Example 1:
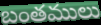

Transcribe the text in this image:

బంతములు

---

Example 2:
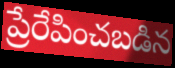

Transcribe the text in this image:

ప్రేరేపించబడిన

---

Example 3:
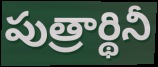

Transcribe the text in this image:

పుత్రార్థినీ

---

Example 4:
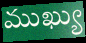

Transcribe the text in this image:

ముఖ్యు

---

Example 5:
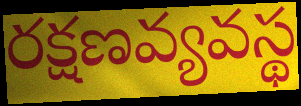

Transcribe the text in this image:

రక్షణవ్యవస్థ